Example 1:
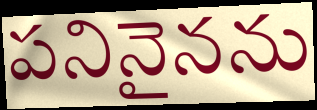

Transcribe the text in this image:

పనినైనను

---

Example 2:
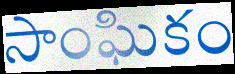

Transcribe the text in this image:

సాంఘికం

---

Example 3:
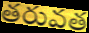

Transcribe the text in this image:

తరువత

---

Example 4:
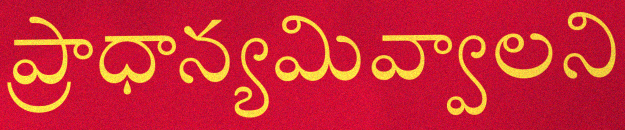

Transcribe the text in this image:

ప్రాధాన్యమివ్వాలని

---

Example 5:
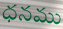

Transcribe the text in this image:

ధనము